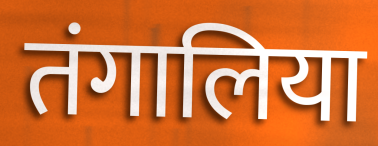
तंगालिया